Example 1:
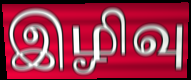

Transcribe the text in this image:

இழிவு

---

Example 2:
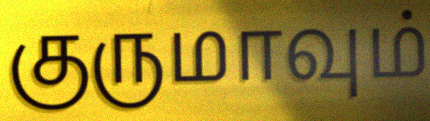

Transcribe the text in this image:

குருமாவும்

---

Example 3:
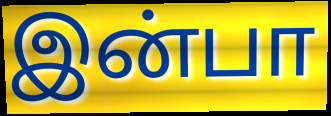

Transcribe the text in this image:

இன்பா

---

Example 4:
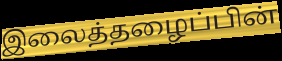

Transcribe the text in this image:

இலைத்தழைப்பின்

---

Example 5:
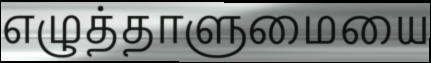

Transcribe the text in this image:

எழுத்தாளுமையை